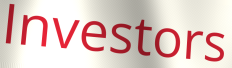
Investors